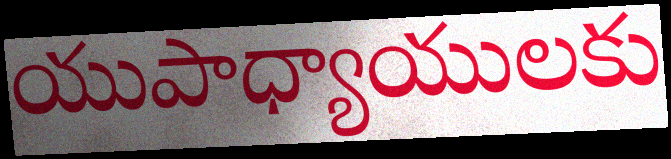
యుపాధ్యాయులకు